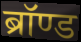
ब्रॉण्ड